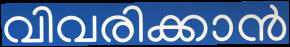
വിവരിക്കാൻ